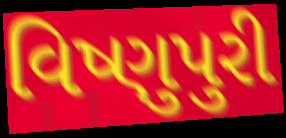
વિષ્ણુપુરી